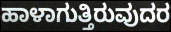
ಹಾಳಾಗುತ್ತಿರುವುದರ